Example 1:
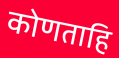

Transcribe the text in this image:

कोणताहि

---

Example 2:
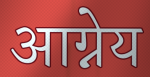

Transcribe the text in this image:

आग्नेय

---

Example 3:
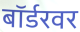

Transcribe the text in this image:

बॉर्डरवर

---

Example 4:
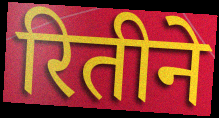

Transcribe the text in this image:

रितीने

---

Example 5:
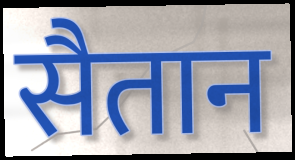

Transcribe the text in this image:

सैतान